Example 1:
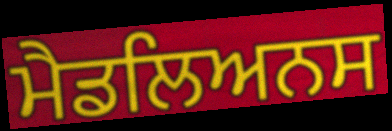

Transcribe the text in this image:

ਮੈਡਲਿਅਨਸ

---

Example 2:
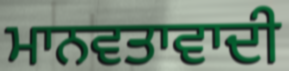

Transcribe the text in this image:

ਮਾਨਵਤਾਵਾਦੀ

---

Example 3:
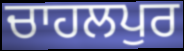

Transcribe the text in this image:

ਚਾਹਲਪੁਰ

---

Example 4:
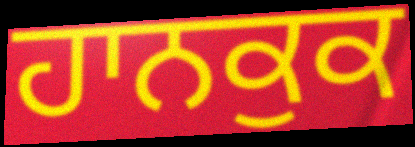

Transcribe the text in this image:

ਹਾਨਕੁਕ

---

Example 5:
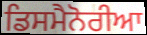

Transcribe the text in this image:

ਡਿਸਮੈਨੋਰੀਆ